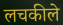
लचकीले